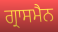
ਗ੍ਰਾਸਮੈਨ